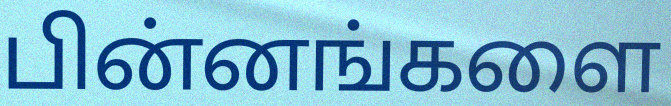
பின்னங்களை